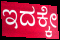
ಇದಕ್ಕೇ